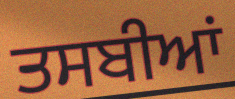
ਤਸਬੀਆਂ